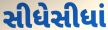
સીધેસીધાં